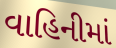
વાહિનીમાં